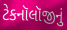
ટેકનૉલૉજીનું